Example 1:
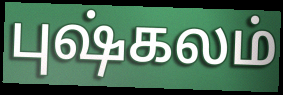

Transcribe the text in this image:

புஷ்கலம்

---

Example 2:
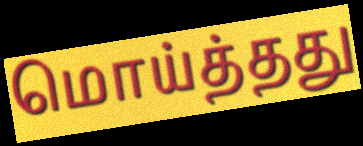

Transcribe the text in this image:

மொய்த்தது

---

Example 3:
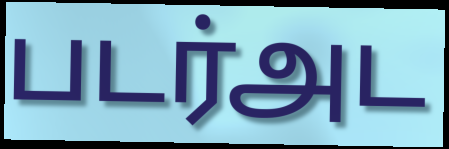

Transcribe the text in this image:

படர்அட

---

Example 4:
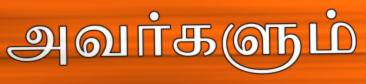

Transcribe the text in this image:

அவர்களும்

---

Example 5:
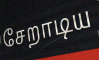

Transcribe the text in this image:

சேறாடிய